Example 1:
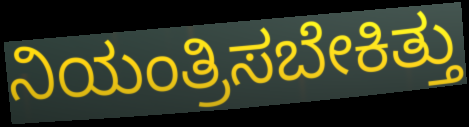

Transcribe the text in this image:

ನಿಯಂತ್ರಿಸಬೇಕಿತ್ತು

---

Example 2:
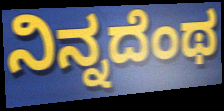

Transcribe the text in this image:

ನಿನ್ನದೆಂಥ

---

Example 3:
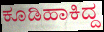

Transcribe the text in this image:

ಕೂಡಿಹಾಕಿದ್ದ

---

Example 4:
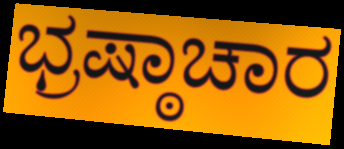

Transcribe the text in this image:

ಭ್ರಷ್ಠಾಚಾರ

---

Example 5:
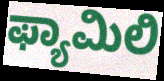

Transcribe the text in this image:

ಫ್ಯಾಮಿಲಿ